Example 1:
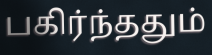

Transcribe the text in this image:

பகிர்ந்ததும்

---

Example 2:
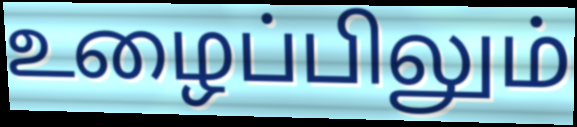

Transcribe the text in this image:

உழைப்பிலும்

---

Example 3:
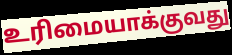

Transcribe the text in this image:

உரிமையாக்குவது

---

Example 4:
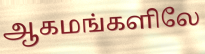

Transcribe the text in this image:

ஆகமங்களிலே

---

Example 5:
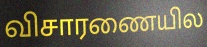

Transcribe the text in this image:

விசாரணையில